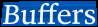
Buffers